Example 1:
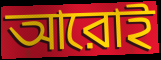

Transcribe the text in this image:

আরোই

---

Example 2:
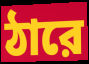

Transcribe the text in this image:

ঠারে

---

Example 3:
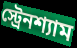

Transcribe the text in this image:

স্ট্রেনশ্যাম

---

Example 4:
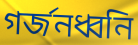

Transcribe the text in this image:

গর্জনধ্বনি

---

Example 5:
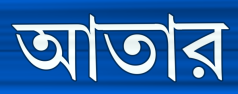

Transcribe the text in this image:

আতার